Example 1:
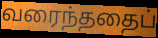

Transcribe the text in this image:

வரைந்ததைப்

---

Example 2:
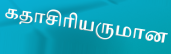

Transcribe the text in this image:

கதாசிரியருமான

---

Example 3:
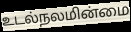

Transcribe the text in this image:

உடல்நலமின்மை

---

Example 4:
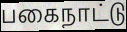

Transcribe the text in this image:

பகைநாட்டு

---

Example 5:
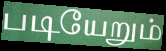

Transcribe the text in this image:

படியேறும்